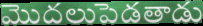
మొదలుపెడతాడు